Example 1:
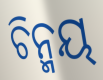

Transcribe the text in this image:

ଚିନ୍ମୟ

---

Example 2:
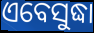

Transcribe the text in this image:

ଏବେସୁଦ୍ଧା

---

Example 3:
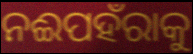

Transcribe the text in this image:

ନଈପହଁରାକୁ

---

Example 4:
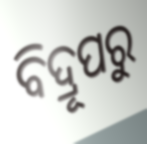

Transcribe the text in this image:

ବିଦ୍ରୂପରୁ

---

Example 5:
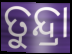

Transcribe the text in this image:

ତୁନ୍ଦ୍ରା